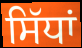
ਸਿੱਧਾਂ